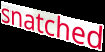
snatched